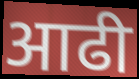
आढी